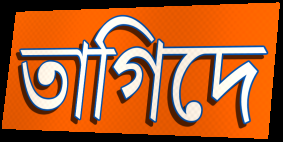
তাগিদে